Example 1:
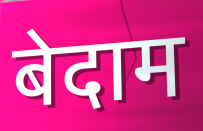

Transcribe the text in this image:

बेदाम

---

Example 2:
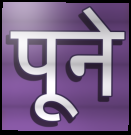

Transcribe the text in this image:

पूने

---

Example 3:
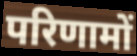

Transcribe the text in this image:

परिणामों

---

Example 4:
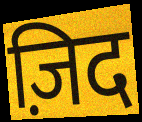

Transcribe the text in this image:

ज़िद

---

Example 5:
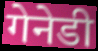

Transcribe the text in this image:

गेनेडी